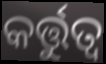
କର୍ତ୍ତୁତ୍ୱ